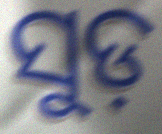
ସୁଡ଼